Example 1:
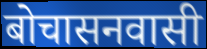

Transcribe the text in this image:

बोचासनवासी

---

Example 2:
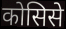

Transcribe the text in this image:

कोसिसे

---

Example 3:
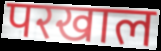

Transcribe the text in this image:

परखाल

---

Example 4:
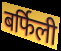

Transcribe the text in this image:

बर्फिली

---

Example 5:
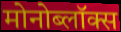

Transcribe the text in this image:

मोनोब्लॉक्स